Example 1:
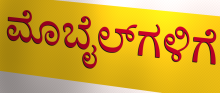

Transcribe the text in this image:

ಮೊಬೈಲ್‌ಗಳಿಗೆ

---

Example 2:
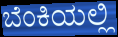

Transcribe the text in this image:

ಬೆಂಕಿಯಲ್ಲಿ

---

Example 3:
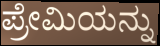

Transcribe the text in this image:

ಪ್ರೇಮಿಯನ್ನು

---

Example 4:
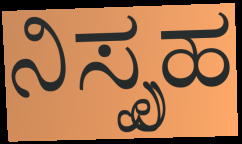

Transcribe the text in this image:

ನಿಸ್ಪೃಹ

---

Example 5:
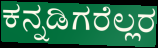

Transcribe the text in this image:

ಕನ್ನಡಿಗರೆಲ್ಲರ